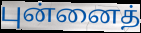
புன்னைத்